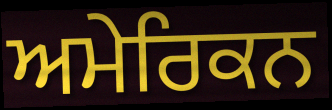
ਅਮੇਰਿਕਨ